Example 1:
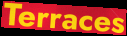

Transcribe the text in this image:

Terraces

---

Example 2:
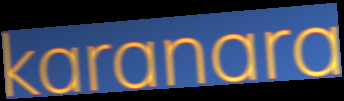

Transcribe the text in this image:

karanara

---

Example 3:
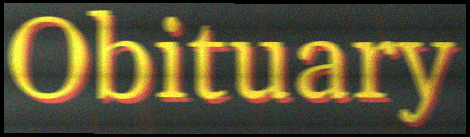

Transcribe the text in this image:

Obituary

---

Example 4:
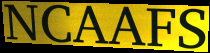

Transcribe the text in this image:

NCAAFS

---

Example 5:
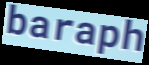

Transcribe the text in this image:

baraph